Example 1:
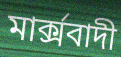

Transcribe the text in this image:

মার্ক্সবাদী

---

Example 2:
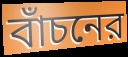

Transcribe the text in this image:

বাঁচনের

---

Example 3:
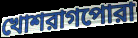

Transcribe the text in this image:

খোশরাগপোরা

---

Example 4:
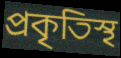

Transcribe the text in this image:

প্রকৃতিস্থ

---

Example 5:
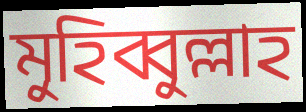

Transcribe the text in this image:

মুহিব্বুল্লাহ